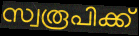
സ്വരൂപിക്ക്